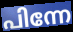
പിന്നേ